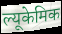
ल्यूकेमिक